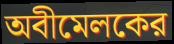
অবীমেলকের